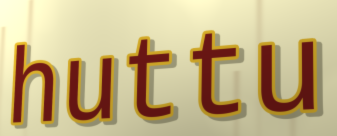
huttu